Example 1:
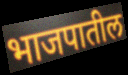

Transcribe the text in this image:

भाजपातील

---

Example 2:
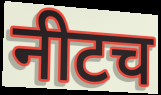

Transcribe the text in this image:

नीटच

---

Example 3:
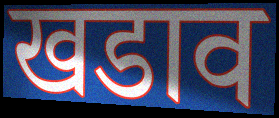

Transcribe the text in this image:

खडाव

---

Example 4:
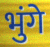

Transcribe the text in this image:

भुंगे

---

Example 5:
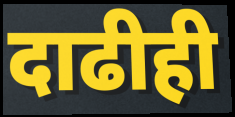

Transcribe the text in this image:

दाढीही